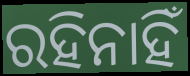
ରହିନାହିଁ